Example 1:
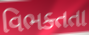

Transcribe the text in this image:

વિભક્તતા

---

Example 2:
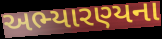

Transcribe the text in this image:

અભ્યારણ્યના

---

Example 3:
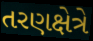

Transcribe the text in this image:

તરણક્ષેત્રે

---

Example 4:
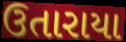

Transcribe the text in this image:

ઉતારાયા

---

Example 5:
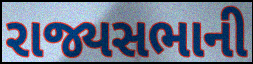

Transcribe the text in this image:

રાજ્યસભાની